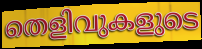
തെളിവുകളുടെ